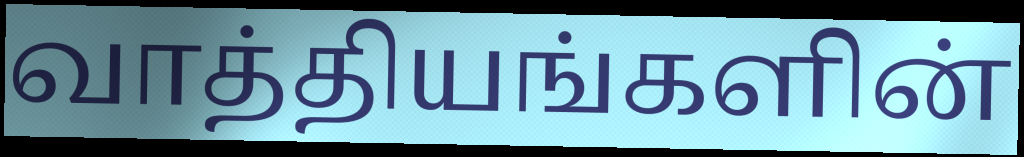
வாத்தியங்களின்